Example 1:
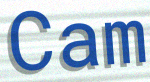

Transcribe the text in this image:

Cam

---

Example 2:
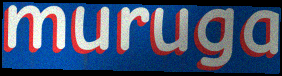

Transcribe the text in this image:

muruga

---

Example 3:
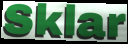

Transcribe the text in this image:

Sklar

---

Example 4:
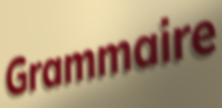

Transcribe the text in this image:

Grammaire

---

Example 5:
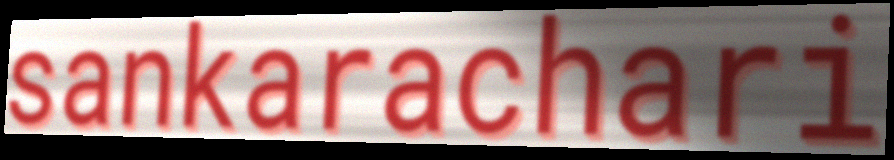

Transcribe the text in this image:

sankarachari